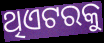
ଥିଏଟରକୁ